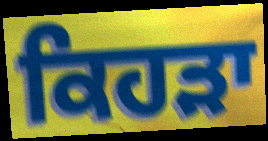
ਕਿਹੜਾ